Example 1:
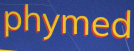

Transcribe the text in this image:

phymed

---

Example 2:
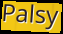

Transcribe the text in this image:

Palsy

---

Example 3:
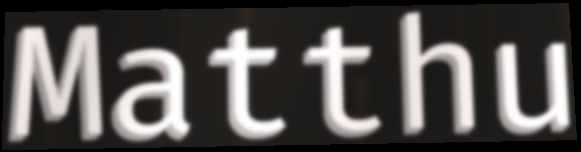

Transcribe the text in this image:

Matthu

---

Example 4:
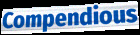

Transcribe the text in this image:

Compendious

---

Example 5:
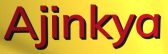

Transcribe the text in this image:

Ajinkya